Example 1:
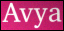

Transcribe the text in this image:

Avya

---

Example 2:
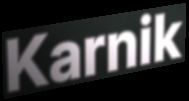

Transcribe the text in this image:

Karnik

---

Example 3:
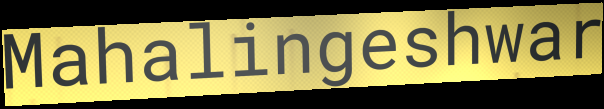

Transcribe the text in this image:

Mahalingeshwar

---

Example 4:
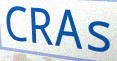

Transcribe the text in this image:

CRAs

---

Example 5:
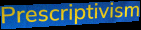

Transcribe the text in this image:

Prescriptivism